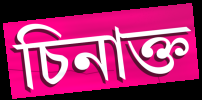
চিনাক্ত